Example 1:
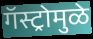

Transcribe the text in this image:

गॅस्ट्रोमुळे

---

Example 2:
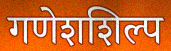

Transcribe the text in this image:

गणेशशिल्प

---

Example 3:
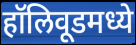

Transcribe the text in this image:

हॉलिवूडमध्ये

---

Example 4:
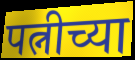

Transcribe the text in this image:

पत्नीच्या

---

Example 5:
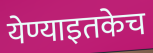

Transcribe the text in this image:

येण्याइतकेच